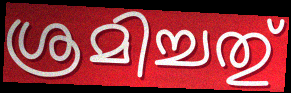
ശ്രമിച്ചതു്